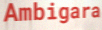
Ambigara